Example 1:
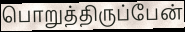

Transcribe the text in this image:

பொறுத்திருப்பேன்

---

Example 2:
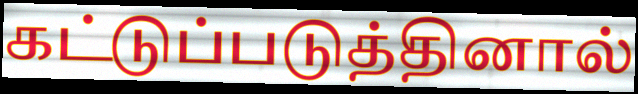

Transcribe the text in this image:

கட்டுப்படுத்தினால்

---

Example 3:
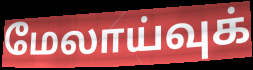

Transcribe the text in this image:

மேலாய்வுக்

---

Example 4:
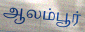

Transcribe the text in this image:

ஆலம்பூர்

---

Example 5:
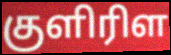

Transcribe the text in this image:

குளிரிள